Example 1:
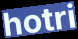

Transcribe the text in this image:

hotri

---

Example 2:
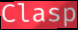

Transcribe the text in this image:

Clasp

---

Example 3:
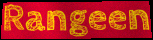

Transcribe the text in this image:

Rangeen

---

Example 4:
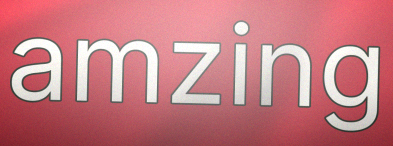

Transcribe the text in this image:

amzing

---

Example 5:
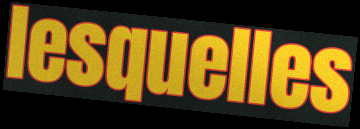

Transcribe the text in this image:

lesquelles